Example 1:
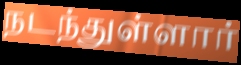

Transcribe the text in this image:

நடந்துள்ளார்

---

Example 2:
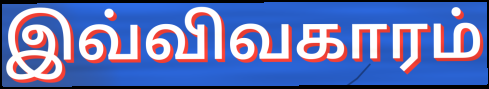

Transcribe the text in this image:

இவ்விவகாரம்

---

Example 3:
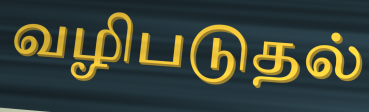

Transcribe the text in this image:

வழிபடுதல்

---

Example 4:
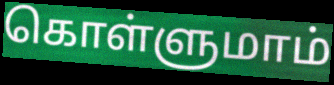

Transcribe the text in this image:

கொள்ளுமாம்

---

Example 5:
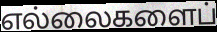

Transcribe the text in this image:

எல்லைகளைப்